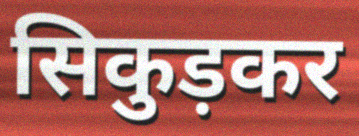
सिकुड़कर